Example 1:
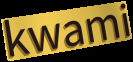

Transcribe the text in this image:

kwami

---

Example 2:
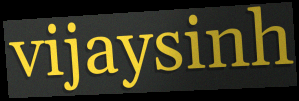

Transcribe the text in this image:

vijaysinh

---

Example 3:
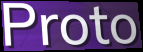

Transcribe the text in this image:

Proto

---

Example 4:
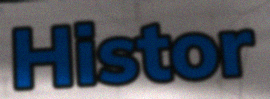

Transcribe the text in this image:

Histor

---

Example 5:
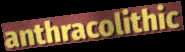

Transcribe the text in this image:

anthracolithic